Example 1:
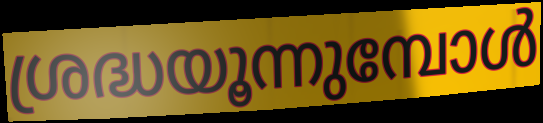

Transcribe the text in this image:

ശ്രദ്ധയൂന്നുമ്പോൾ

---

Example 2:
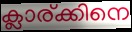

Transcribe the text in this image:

ക്ലാര്ക്കിനെ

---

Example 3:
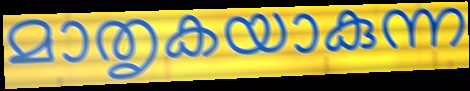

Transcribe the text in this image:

മാതൃകയാകുന്ന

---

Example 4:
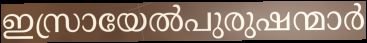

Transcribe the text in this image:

ഇസ്രായേൽപുരുഷന്മാർ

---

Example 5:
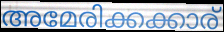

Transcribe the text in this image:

അമേരിക്കക്കാര്